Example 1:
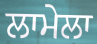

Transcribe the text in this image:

ਲਾਮੇਲਾ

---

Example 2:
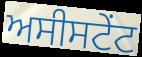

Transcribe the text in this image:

ਅਸੀਸਟੇਂਟ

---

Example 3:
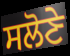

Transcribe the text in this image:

ਸਲੋਣੇ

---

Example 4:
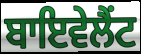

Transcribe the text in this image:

ਬਾਇਵੇਲੈਂਟ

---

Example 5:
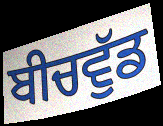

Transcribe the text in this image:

ਬੀਚਵੁੱਡ